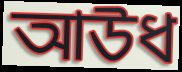
আউধ